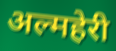
अल्महेरी